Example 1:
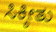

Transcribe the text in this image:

ಸಿಕ್ಕೀತು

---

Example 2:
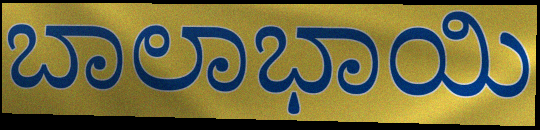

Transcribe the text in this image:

ಬಾಲಾಭಾಯಿ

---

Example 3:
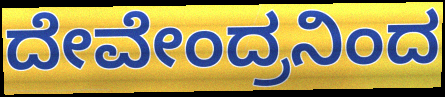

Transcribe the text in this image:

ದೇವೇಂದ್ರನಿಂದ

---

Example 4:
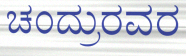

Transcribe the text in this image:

ಚಂದ್ರುರವರ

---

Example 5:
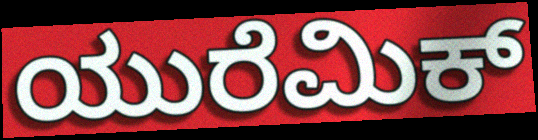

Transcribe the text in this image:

ಯುರೆಮಿಕ್